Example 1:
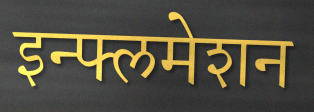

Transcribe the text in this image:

इन्फ्लमेशन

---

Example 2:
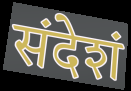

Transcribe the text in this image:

संदेशं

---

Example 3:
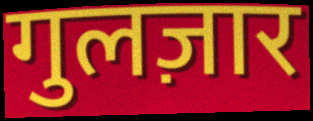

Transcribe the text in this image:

गुलज़ार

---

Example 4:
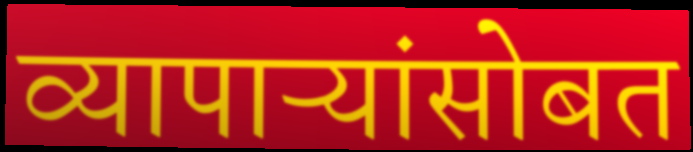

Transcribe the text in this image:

व्यापाऱ्यांसोबत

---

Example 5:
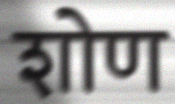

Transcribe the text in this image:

शोण